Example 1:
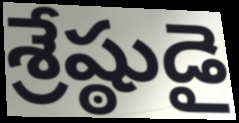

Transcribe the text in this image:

శ్రేష్ఠుడై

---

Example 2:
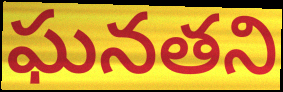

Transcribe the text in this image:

ఘనతని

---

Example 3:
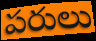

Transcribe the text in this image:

పరులు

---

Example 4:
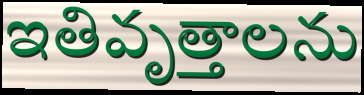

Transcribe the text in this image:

ఇతివృత్తాలను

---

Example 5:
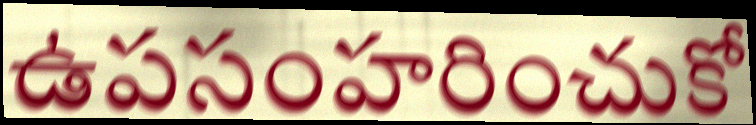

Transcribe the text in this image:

ఉపసంహరించుకో